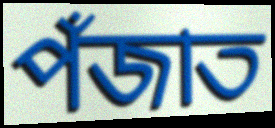
পঁজাত